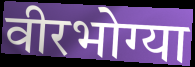
वीरभोग्या